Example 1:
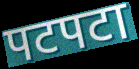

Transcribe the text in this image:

पटपटा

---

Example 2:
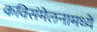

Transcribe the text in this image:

कविसंमेलनामध्ये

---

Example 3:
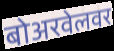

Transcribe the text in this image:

बोअरवेलवर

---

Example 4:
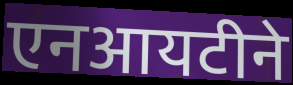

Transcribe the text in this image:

एनआयटीने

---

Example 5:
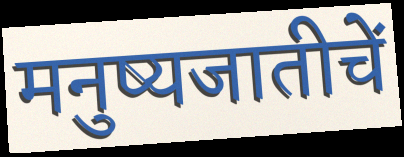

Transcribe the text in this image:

मनुष्यजातीचें